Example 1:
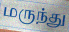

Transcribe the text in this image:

மருந்து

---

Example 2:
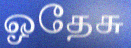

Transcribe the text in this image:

ஓதேசு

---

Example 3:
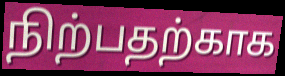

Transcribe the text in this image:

நிற்பதற்காக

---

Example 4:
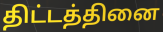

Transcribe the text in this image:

திட்டத்தினை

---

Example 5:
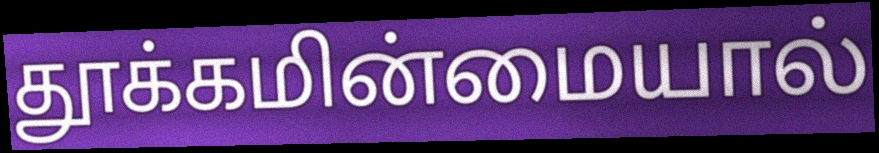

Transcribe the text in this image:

தூக்கமின்மையால்